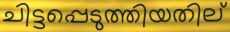
ചിട്ടപ്പെടുത്തിയതില്